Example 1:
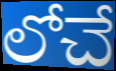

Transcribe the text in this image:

లోచే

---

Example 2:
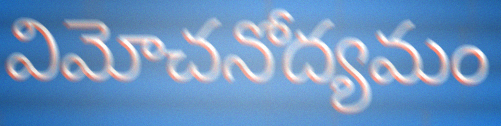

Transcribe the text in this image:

విమోచనోద్యమం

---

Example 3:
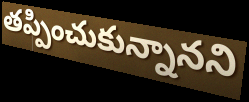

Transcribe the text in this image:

తప్పించుకున్నానని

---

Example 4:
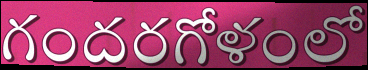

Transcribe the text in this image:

గందరగోళంలో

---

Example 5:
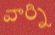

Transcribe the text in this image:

వార్ని